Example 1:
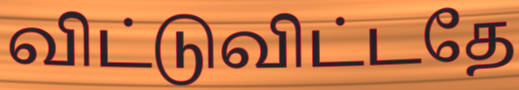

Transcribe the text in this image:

விட்டுவிட்டதே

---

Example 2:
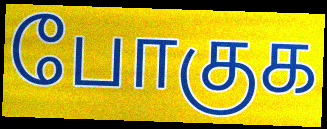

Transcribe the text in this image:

போகுக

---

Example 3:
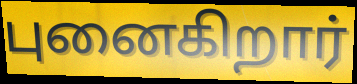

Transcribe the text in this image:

புனைகிறார்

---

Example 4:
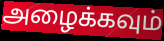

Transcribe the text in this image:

அழைக்கவும்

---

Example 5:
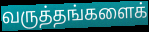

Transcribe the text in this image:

வருத்தங்களைக்